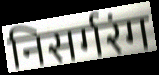
निसर्गरंग